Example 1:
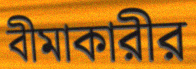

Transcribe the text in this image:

বীমাকারীর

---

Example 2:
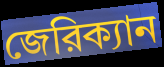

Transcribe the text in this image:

জেরিক্যান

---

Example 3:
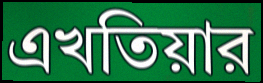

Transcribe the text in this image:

এখতিয়ার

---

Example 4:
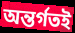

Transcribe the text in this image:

অন্তর্গতই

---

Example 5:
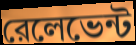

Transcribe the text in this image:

রেলেভেন্ট